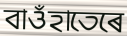
বাওঁহাতেৰে